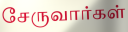
சேருவார்கள்